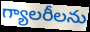
గ్యాలరీలను